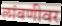
लांबणीवर